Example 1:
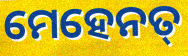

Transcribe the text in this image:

ମେହେନତ୍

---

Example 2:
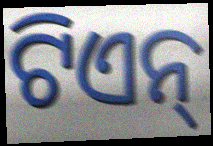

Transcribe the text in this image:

ଟିଏନ୍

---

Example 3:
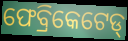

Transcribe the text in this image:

ଫେବ୍ରିକେଟେଡ୍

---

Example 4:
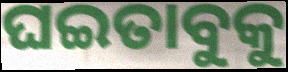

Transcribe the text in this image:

ଘଇତାବୁକୁ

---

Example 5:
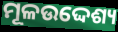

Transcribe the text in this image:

ମୂଳଉଦ୍ଦେଶ୍ୟ